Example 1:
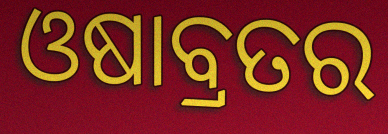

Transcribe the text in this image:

ଓଷାବ୍ରତର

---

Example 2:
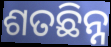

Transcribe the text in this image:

ଶତଛିନ୍ନ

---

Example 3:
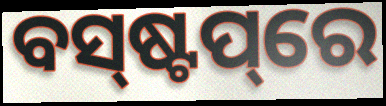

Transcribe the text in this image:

ବସ୍‌ଷ୍ଟପ୍‌ରେ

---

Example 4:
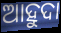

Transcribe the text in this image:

ଆହୁଦା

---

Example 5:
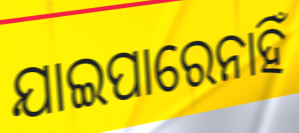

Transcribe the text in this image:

ଯାଇପାରେନାହିଁ